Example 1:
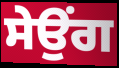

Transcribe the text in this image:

ਸੇਉਂਗ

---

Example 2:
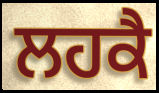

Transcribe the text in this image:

ਲਹਕੈ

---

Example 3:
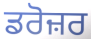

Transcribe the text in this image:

ਡਰੋਜ਼ਰ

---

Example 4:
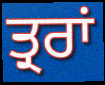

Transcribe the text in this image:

ਤ੍ਰਰਾਂ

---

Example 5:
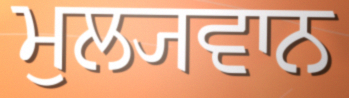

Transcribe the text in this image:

ਮੁਲ੍ਯਵਾਨ